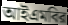
আইএমবির